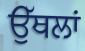
ਉੱਥਲਾਂ